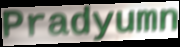
Pradyumn